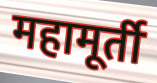
महामूर्ती